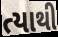
ત્યાથી